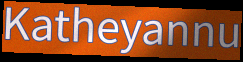
Katheyannu